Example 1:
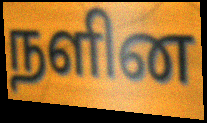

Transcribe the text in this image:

நளின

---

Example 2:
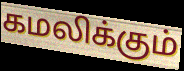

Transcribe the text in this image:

கமலிக்கும்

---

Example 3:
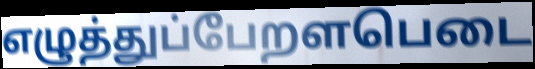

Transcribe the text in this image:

எழுத்துப்பேறளபெடை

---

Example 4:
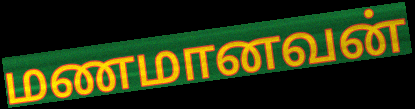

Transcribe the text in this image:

மணமானவன்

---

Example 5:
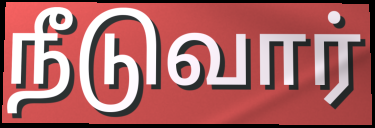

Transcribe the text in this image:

நீடுவார்